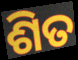
ଶିତ